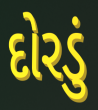
દોરડું